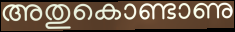
അതുകൊണ്ടാണു